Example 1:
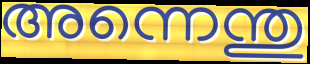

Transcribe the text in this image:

അന്നെന്തു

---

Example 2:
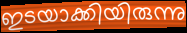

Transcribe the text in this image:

ഇടയാക്കിയിരുന്നു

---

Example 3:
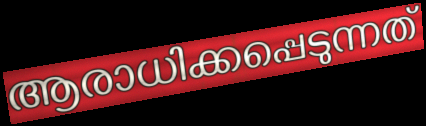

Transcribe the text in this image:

ആരാധിക്കപ്പെടുന്നത്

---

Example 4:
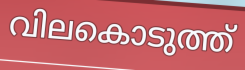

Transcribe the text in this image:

വിലകൊടുത്ത്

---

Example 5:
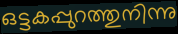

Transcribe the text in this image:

ഒട്ടകപ്പുറത്തുനിന്നു